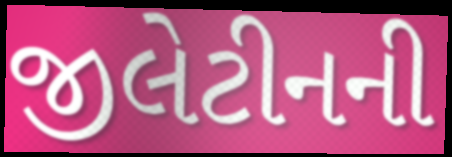
જીલેટીનની